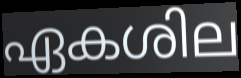
ഏകശില